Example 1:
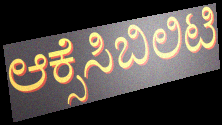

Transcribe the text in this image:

ಆಕ್ಸೆಸಿಬಿಲಿಟಿ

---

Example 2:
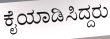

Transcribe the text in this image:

ಕೈಯಾಡಿಸಿದ್ದರು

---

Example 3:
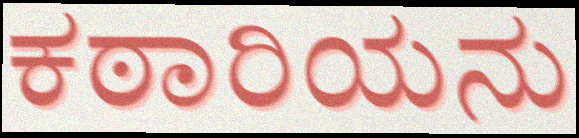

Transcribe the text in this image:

ಕಠಾರಿಯನು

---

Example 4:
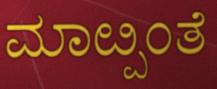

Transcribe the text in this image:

ಮಾೞ್ಪಂತೆ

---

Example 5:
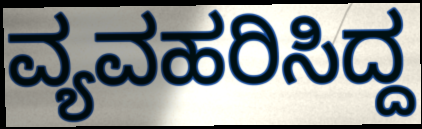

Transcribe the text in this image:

ವ್ಯವಹರಿಸಿದ್ದ